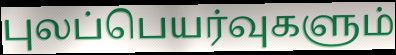
புலப்பெயர்வுகளும்